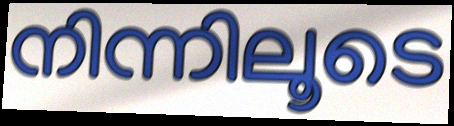
നിന്നിലൂടെ